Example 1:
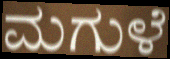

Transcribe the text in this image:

ಮಗುಳೆ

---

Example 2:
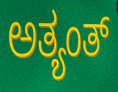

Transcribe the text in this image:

ಅತ್ಯಂತ್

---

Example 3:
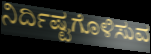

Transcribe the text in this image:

ನಿರ್ದಿಷ್ಟಗೊಳಿಸುವ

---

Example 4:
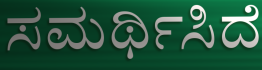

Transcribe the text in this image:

ಸಮರ್ಥಿಸಿದೆ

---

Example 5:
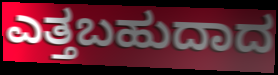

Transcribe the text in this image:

ಎತ್ತಬಹುದಾದ